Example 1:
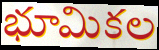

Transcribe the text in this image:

భూమికల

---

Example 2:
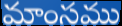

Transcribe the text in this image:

మాంసము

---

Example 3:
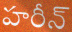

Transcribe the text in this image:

హరీన్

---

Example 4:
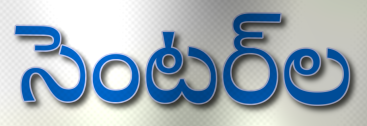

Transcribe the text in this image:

సెంటర్‌ల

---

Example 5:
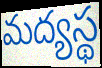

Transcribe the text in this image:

మద్యస్థ